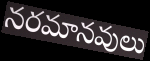
నరమానవులు